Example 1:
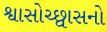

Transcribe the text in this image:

શ્વાસોચ્છ્વાસનો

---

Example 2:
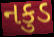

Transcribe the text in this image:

નકુડ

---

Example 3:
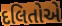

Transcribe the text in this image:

દલિતોએ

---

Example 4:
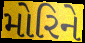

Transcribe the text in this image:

મોરિને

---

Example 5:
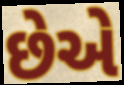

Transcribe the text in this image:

છેએ